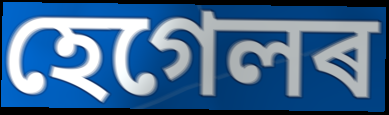
হেগেলৰ